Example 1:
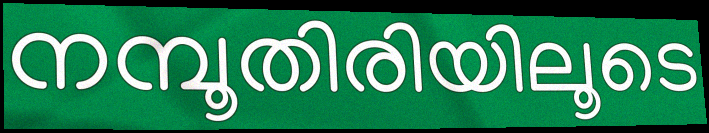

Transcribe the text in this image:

നമ്പൂതിരിയിലൂടെ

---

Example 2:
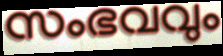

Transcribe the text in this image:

സംഭവവും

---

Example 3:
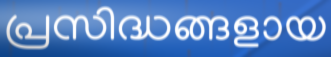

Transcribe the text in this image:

പ്രസിദ്ധങ്ങളായ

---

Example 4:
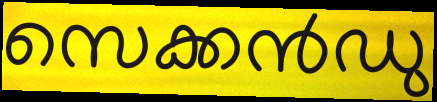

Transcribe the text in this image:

സെക്കൻഡു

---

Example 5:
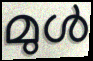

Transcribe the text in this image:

മുൾ